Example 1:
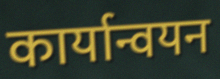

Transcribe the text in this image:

कार्यान्‍वयन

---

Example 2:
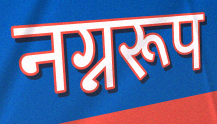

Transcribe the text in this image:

नग्नरूप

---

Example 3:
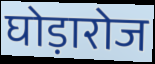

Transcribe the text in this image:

घोड़ारोज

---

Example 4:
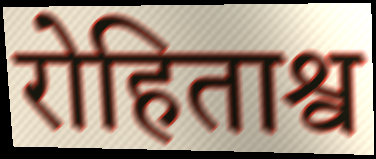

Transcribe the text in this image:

रोहिताश्व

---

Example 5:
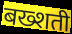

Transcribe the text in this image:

बख्शती